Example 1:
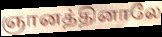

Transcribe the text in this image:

ஞானத்தினாலே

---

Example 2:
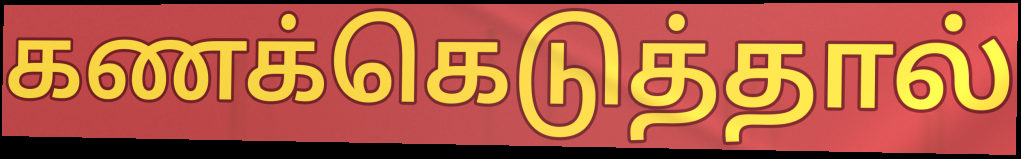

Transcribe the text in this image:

கணக்கெடுத்தால்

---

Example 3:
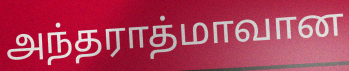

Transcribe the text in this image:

அந்தராத்மாவான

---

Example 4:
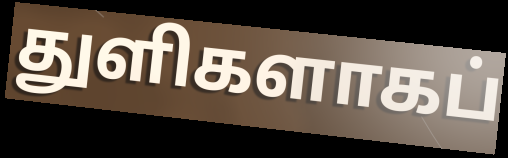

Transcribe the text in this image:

துளிகளாகப்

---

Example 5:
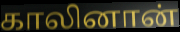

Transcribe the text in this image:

காலினான்